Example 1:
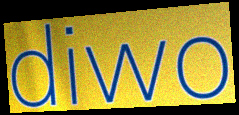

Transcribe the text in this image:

diwo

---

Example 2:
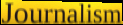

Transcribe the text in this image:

Journalism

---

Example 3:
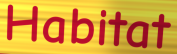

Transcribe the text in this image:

Habitat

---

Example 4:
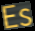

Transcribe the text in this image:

Es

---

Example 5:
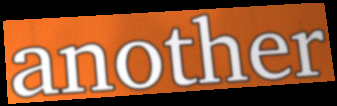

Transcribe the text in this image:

another